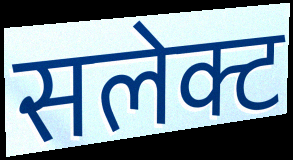
सलेक्ट